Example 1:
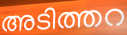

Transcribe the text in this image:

അടിത്തറ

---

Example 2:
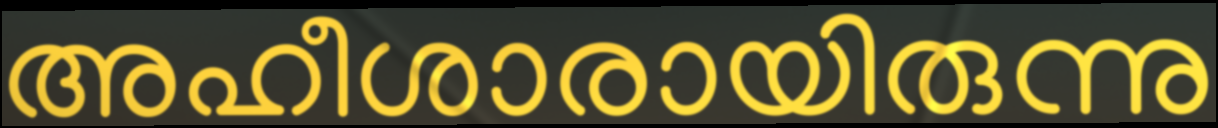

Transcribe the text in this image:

അഹീശാരായിരുന്നു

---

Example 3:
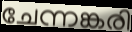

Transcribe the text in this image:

ചേന്നങ്കരി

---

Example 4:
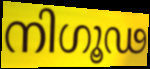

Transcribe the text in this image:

നിഗൂഢ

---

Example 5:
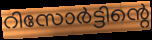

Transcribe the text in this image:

റിസോർട്ടിന്റെ